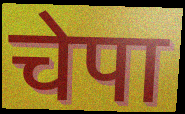
चेपा